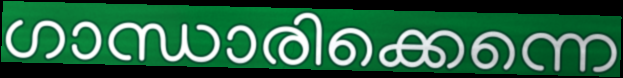
ഗാന്ധാരിക്കെന്നെ